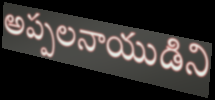
అప్పలనాయుడిని